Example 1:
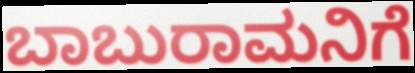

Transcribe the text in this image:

ಬಾಬುರಾಮನಿಗೆ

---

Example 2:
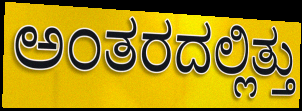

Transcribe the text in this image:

ಅಂತರದಲ್ಲಿತ್ತು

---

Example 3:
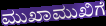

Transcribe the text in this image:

ಮುಖಾಮುಖಿಗೆ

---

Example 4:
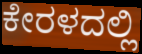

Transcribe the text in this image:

ಕೇರಳದಲ್ಲಿ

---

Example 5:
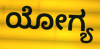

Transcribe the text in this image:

ಯೋಗ್ಯ